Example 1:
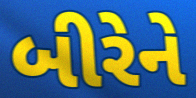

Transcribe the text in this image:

બીરેને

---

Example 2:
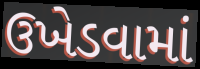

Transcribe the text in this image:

ઉખેડવામાં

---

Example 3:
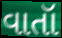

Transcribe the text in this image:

વાતૉ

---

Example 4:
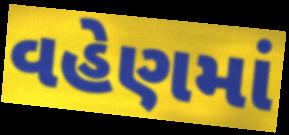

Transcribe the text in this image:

વહેણમાં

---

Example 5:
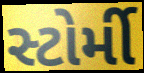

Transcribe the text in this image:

સ્ટોર્મી